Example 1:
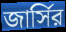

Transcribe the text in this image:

জার্সির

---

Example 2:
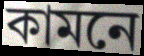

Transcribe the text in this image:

কামনে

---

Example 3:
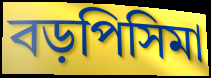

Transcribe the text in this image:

বড়পিসিমা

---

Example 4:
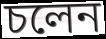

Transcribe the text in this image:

চলেন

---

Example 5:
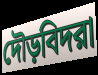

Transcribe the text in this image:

দৌড়বিদরা